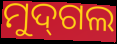
ମୁଦ୍‌ଗଲ